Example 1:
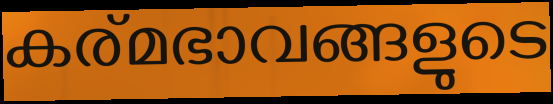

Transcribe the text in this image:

കര്മഭാവങ്ങളുടെ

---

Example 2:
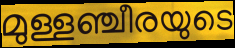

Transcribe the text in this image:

മുള്ളഞ്ചീരയുടെ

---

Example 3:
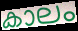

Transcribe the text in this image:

കാലം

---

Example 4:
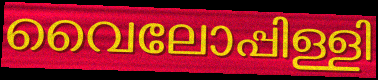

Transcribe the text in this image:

വൈലോപ്പിള്ളി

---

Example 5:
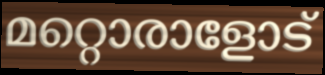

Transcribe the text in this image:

മറ്റൊരാളോട്